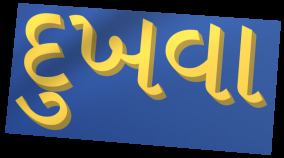
દુખવા